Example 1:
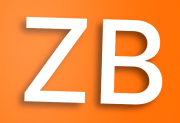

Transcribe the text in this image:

ZB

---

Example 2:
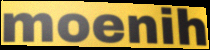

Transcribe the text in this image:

moenih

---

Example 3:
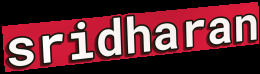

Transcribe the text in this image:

sridharan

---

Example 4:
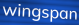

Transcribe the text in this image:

wingspan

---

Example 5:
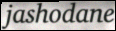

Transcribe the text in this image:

jashodane